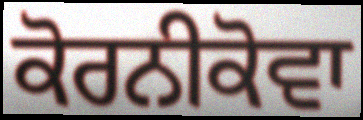
ਕੋਰਨੀਕੋਵਾ